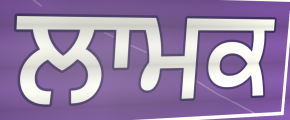
ਲਾਮਕ